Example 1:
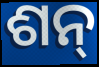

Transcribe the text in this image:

ଶନ୍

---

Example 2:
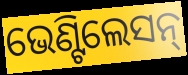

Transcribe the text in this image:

ଭେଣ୍ଟିଲେସନ୍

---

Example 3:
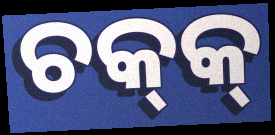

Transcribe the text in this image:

ଚକ୍‌କ୍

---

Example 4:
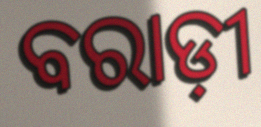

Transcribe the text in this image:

ବରାଡ଼ୀ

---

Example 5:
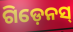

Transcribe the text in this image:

ଗିଡ଼େନସ୍